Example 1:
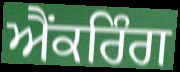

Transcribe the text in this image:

ਐਂਕਰਿੰਗ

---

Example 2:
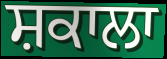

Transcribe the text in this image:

ਸ਼ਕਾਲਾ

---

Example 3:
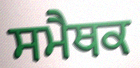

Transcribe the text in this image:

ਸਮੈਥਕ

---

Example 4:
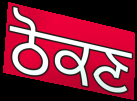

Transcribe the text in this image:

ਠੋਕਣ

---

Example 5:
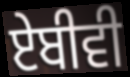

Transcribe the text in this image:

ਏਬੀਵੀ